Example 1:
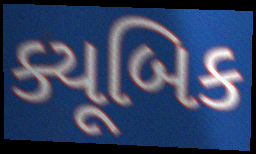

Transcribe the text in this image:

ક્યૂબિક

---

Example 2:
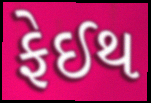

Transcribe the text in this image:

ફેઈથ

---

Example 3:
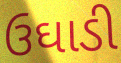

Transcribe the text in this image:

ઉઘાડી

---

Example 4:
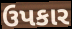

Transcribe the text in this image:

ઉપકાર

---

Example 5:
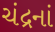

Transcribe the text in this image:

ચંદ્રનાં